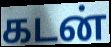
கடன்